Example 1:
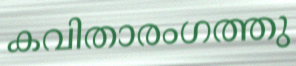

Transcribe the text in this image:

കവിതാരംഗത്തു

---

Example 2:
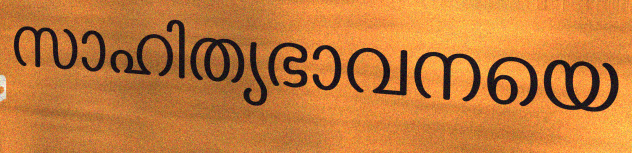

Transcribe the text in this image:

സാഹിത്യഭാവനയെ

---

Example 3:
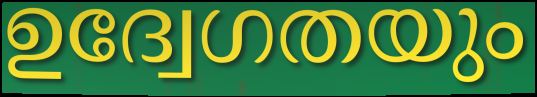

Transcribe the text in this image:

ഉദ്വേഗതയും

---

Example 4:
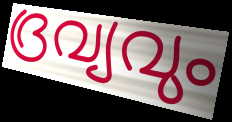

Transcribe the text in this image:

ദ്രവ്യവും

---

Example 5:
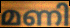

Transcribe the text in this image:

മണി